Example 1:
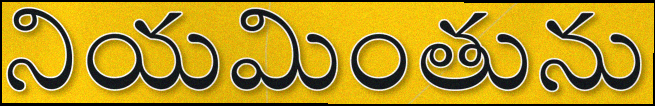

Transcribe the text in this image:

నియమింతును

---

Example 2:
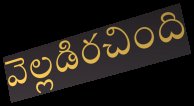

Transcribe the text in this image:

వెల్లడిరచింది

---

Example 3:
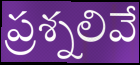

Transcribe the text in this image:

ప్రశ్నలివే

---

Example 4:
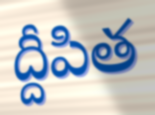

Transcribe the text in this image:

ద్దీపిత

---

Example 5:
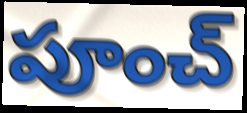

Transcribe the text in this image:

పూంచ్